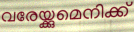
വരേയ്ക്കുമെനിക്ക്